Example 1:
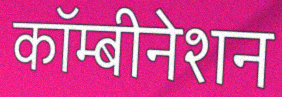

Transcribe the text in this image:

कॉम्बीनेशन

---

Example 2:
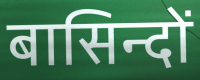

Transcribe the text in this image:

बासिन्दों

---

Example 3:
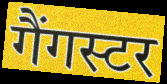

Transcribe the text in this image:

गैंगस्‍टर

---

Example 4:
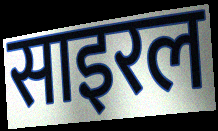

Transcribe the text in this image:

साइरल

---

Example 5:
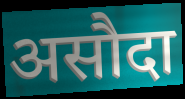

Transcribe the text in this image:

असौदा